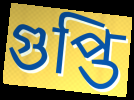
গুপ্তি